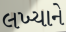
લખ્યાને